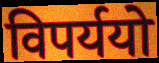
विपर्ययो